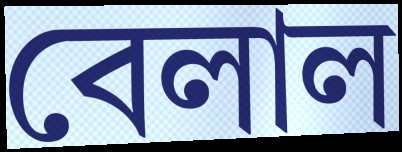
বেলাল